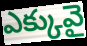
ఎక్కువై